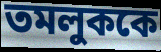
তমলুককে